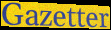
Gazetter